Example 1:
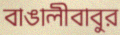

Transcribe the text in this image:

বাঙালীবাবুর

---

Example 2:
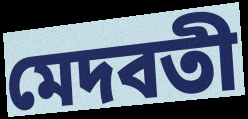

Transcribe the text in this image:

মেদবতী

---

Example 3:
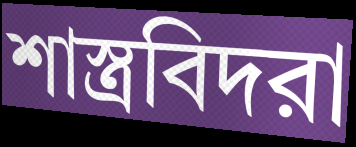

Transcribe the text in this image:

শাস্ত্রবিদরা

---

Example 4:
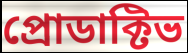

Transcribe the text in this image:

প্রোডাক্টিভ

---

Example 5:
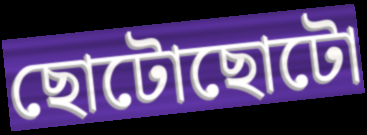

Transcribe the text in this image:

ছোটোছোটো